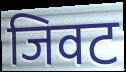
जिवट